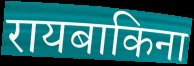
रायबाकिना